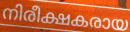
നിരീക്ഷകരായ